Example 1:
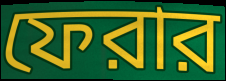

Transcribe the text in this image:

ফেরার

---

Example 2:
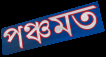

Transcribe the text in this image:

পঞ্চমত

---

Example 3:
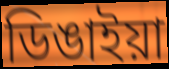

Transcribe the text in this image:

ডিঙাইয়া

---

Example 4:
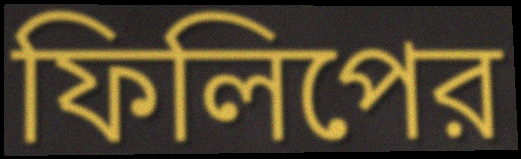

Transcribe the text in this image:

ফিলিপের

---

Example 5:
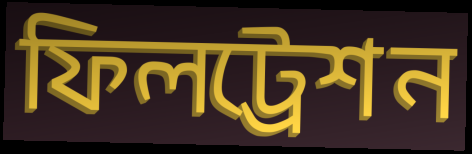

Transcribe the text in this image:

ফিলট্রেশন